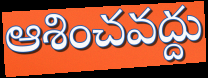
ఆశించవద్దు